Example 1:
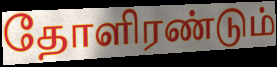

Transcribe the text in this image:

தோளிரண்டும்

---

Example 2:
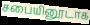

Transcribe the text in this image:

சபையினூடாக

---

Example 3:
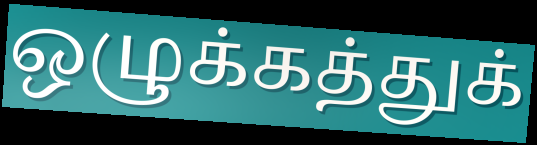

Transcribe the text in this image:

ஒழுக்கத்துக்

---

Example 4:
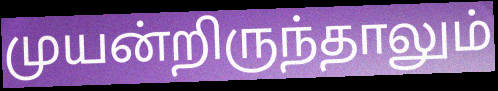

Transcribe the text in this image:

முயன்றிருந்தாலும்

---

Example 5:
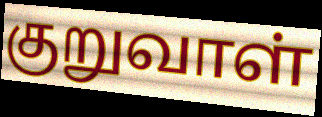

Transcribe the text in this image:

குறுவாள்